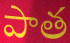
పాత